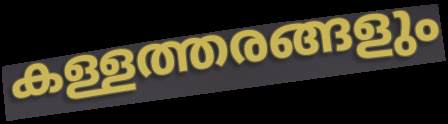
കള്ളത്തരങ്ങളും